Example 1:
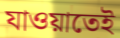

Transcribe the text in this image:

যাওয়াতেই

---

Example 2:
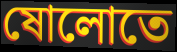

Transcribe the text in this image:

ষোলোতে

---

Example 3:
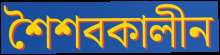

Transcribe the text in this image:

শৈশবকালীন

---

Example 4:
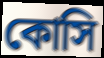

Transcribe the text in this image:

কোসি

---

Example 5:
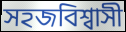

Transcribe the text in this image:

সহজবিশ্বাসী